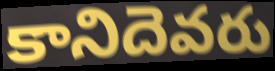
కానిదెవరు